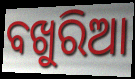
ବଖୁରିଆ